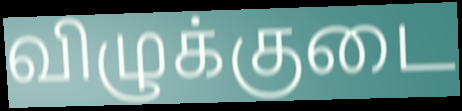
விழுக்குடை